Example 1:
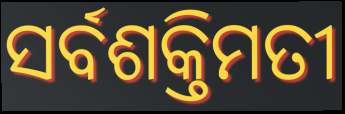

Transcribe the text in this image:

ସର୍ବଶକ୍ତିମତୀ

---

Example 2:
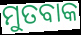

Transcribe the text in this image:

ମୁତବାକ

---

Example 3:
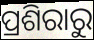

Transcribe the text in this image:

ପ୍ରଶିରାରୁ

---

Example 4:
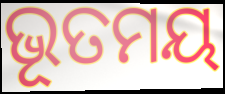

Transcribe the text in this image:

ଭୂତମୟ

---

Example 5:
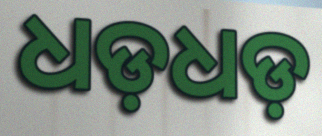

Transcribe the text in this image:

ଧଡ଼ଧଡ଼